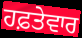
ਹਫ਼ਤੇਵਾਰ